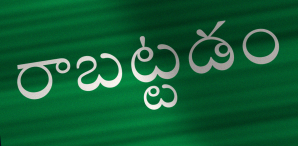
రాబట్టడం